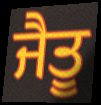
ਜੈਤੂ